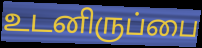
உடனிருப்பை